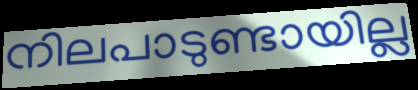
നിലപാടുണ്ടായില്ല